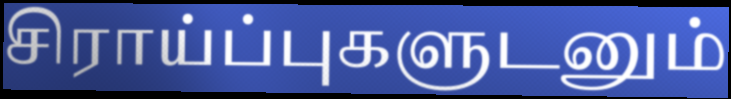
சிராய்ப்புகளுடனும்